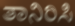
ತಾನಿರಿಸಿ